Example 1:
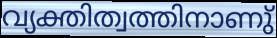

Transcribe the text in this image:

വ്യക്തിത്വത്തിനാണു്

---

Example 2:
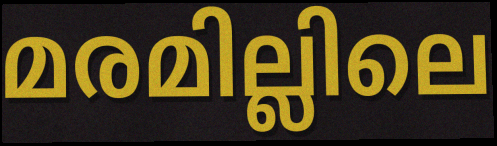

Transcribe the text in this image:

മരമില്ലിലെ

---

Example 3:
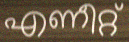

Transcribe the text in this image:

എണീറ്റ്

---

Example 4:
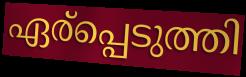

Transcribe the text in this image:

ഏര്പ്പെടുത്തി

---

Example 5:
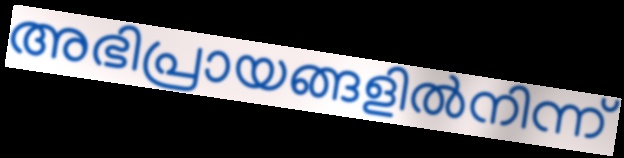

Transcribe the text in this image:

അഭിപ്രായങ്ങളിൽനിന്ന്